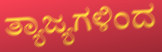
ತ್ಯಾಜ್ಯಗಳಿಂದ